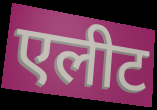
एलीट